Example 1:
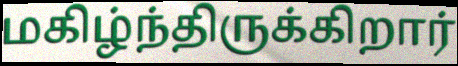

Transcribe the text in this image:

மகிழ்ந்திருக்கிறார்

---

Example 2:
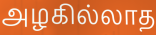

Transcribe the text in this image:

அழகில்லாத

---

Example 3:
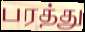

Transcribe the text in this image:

பரத்து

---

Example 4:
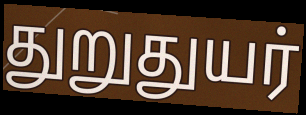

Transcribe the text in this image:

துறுதுயர்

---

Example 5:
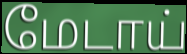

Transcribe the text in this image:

மேடாய்